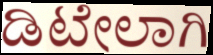
ಡಿಟೇಲಾಗಿ